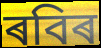
ৰবিৰ